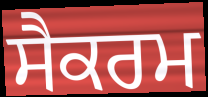
ਸੈਕਰਮ